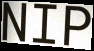
NIP